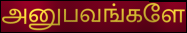
அனுபவங்களே